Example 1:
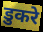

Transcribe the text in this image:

डुकरे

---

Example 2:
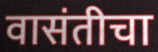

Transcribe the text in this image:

वासंतीचा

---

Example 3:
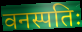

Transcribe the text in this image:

वनस्पतिः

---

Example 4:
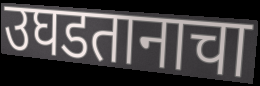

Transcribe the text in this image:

उघडतानाचा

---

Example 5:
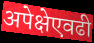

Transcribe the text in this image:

अपेक्षेएवढी